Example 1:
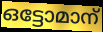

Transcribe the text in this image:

ഒട്ടോമാന്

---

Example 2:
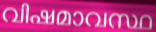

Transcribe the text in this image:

വിഷമാവസ്ഥ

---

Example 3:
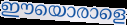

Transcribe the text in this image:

ഈയൊരാളെ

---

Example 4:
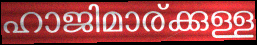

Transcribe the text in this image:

ഹാജിമാര്ക്കുള്ള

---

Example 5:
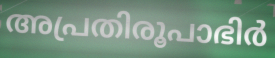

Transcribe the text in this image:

അപ്രതിരൂപാഭിർ